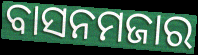
ବାସନମଜାର